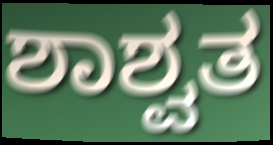
ಶಾಶ್ವತ